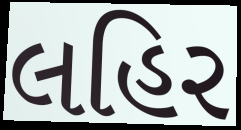
લહિર